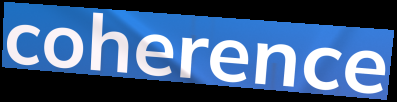
coherence